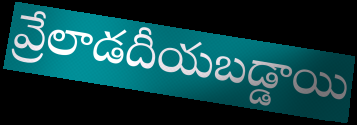
వ్రేలాడదీయబడ్డాయి